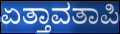
ಏತ್ತಾವತಾಪಿ